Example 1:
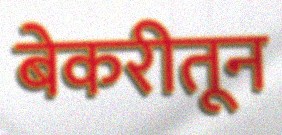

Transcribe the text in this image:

बेकरीतून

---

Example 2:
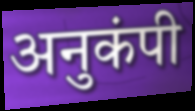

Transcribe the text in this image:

अनुकंपी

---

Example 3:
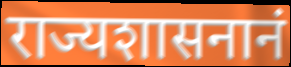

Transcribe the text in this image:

राज्यशासनानं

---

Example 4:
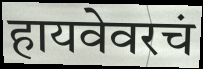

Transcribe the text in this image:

हायवेवरचं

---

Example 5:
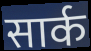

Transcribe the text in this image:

सार्क